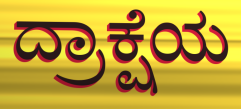
ದ್ರಾಕ್ಷೆಯ